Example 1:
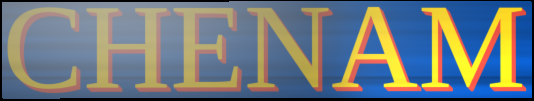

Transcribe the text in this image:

CHENAM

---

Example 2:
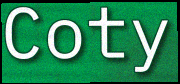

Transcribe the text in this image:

Coty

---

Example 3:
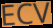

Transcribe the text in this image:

ECV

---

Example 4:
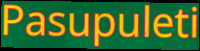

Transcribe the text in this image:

Pasupuleti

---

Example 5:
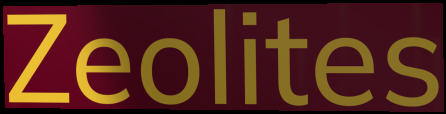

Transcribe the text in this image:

Zeolites